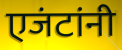
एजंटांनी